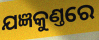
ଯଜ୍ଞକୁଣ୍ତରେ